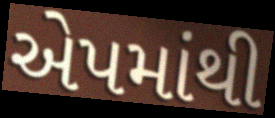
એપમાંથી